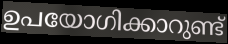
ഉപയോഗിക്കാറുണ്ട്